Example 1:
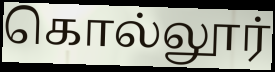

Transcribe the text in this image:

கொல்லூர்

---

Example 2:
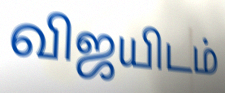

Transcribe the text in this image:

விஜயிடம்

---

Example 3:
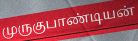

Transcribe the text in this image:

முருகுபாண்டியன்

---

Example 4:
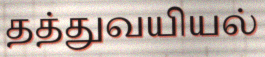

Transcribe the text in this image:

தத்துவயியல்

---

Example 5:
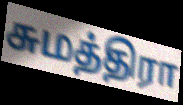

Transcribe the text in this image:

சுமத்திரா